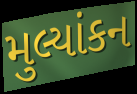
મુલ્યાંકન